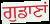
ਗੁਡਾਣਾਂ